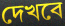
দেখবে